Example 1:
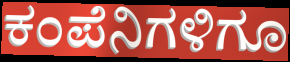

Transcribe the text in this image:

ಕಂಪೆನಿಗಳಿಗೂ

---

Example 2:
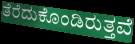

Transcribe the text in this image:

ತೆರೆದುಕೊಂಡಿರುತ್ತವೆ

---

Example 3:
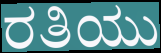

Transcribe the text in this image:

ರತಿಯು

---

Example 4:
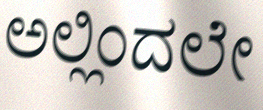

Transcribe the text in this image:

ಅಲ್ಲಿಂದಲೇ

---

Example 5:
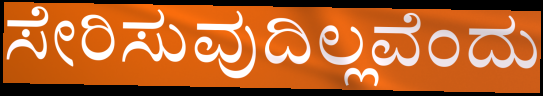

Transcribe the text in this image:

ಸೇರಿಸುವುದಿಲ್ಲವೆಂದು